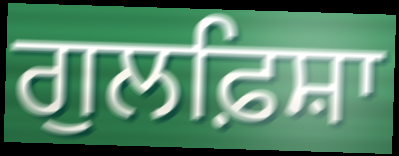
ਗੁਲਫ਼ਿਸ਼ਾ